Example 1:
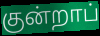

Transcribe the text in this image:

குன்றாப்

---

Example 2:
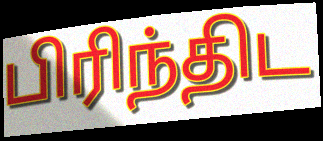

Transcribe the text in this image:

பிரிந்திட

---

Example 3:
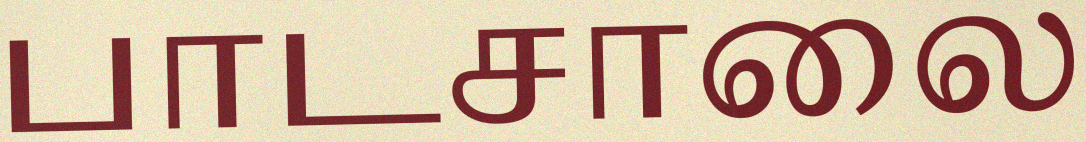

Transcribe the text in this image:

பாடசாலை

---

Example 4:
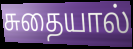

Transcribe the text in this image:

சுதையால்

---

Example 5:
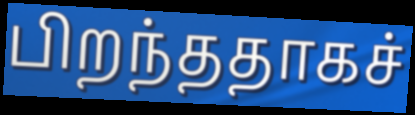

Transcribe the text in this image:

பிறந்ததாகச்